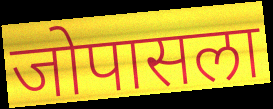
जोपासला